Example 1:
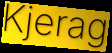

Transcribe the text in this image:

Kjerag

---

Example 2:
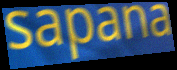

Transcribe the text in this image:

sapana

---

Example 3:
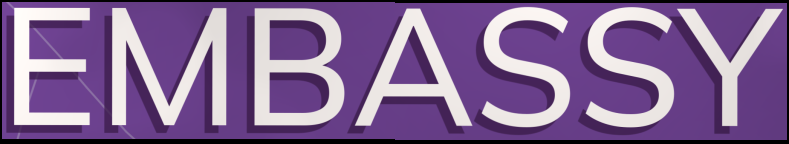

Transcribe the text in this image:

EMBASSY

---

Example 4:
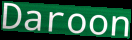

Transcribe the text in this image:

Daroon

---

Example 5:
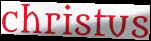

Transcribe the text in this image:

christus